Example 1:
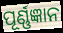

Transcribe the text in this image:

ପୂର୍ଣ୍ଣଜ୍ଞାନ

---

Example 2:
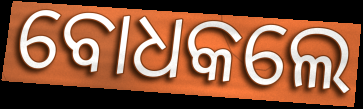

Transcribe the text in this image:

ବୋଧକଲେ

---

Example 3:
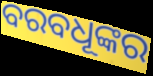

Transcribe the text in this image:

ବରବଧୂଙ୍କର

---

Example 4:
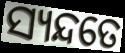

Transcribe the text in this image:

ସ୍ଯନ୍ଦତେ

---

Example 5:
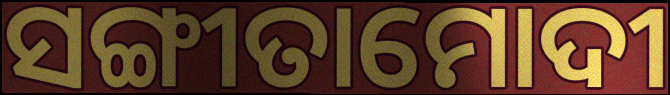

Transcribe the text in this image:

ସଙ୍ଗୀତାମୋଦୀ